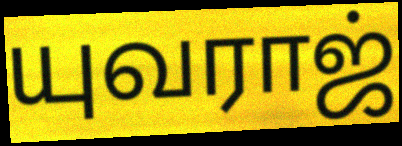
யுவராஜ்